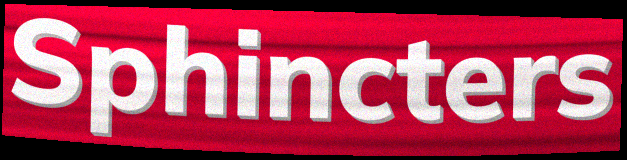
Sphincters